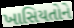
ખાસિયતોને